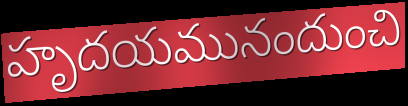
హృదయమునందుంచి